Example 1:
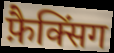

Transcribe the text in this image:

फ़ैक्सिंग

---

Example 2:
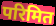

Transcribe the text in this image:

परिमित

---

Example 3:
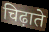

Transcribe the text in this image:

चिढ़ाते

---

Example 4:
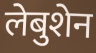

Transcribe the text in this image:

लेबुशेन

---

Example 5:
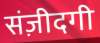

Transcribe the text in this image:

संज़ीदगी